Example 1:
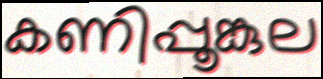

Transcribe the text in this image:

കണിപ്പൂങ്കുല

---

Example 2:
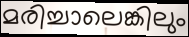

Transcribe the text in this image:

മരിച്ചാലെങ്കിലും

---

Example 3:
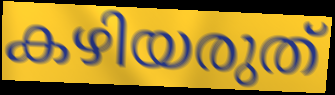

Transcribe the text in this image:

കഴിയരുത്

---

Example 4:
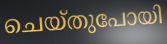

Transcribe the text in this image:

ചെയ്തുപോയി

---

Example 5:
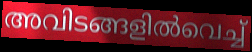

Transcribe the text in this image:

അവിടങ്ങളിൽവെച്ച്